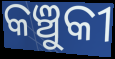
କଞ୍ଚୁକୀ